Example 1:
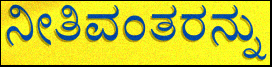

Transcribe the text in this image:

ನೀತಿವಂತರನ್ನು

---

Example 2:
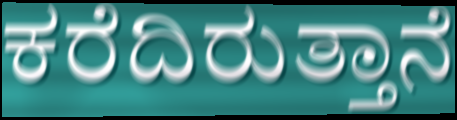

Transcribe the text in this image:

ಕರೆದಿರುತ್ತಾನೆ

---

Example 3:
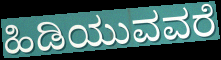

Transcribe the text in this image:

ಹಿಡಿಯುವವರೆ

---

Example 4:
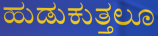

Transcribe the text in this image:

ಹುಡುಕುತ್ತಲೂ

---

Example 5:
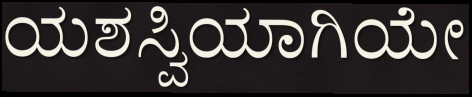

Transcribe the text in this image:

ಯಶಸ್ವಿಯಾಗಿಯೇ